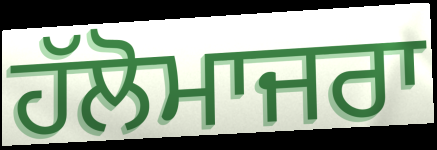
ਹੱਲੋਮਾਜਰਾ